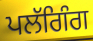
ਪਲੱਗਿੰਗ